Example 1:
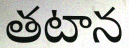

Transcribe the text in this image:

తటాన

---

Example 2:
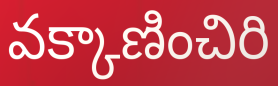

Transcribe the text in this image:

వక్కాణించిరి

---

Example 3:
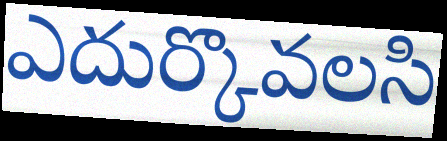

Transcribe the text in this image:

ఎదుర్కొవలసి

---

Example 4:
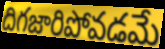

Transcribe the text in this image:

దిగజారిపోవడమే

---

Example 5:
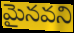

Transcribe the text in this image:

మైనవని